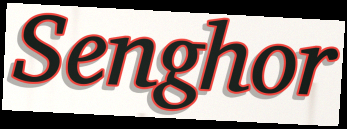
Senghor